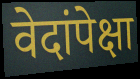
वेदांपेक्षा